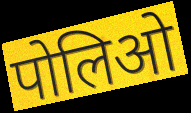
पोलिओ